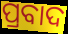
ପ୍ରବାଦ